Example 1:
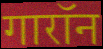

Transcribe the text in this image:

गारॉन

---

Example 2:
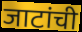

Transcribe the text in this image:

जाटांची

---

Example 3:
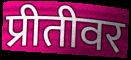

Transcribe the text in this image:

प्रीतीवर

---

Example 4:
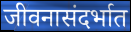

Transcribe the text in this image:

जीवनासंदर्भात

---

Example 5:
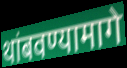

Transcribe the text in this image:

थांबवण्यामागे